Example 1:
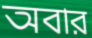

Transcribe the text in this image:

অবার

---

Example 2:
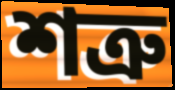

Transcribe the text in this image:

শত্রু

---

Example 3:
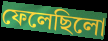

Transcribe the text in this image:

ফেলেছিলো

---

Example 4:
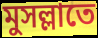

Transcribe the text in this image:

মুসল্লাতে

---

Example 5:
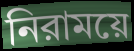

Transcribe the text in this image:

নিরাময়ে